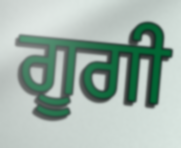
ਗੂਗੀ